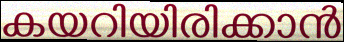
കയറിയിരിക്കാൻ